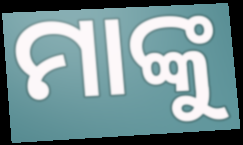
ମାଙ୍କୁ